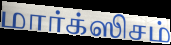
மார்க்ஸிசம்